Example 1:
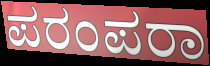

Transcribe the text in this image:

ಪರಂಪರಾ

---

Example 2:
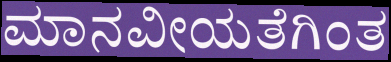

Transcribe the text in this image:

ಮಾನವೀಯತೆಗಿಂತ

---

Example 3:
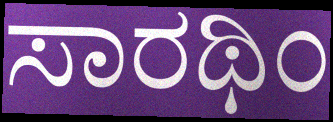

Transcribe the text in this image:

ಸಾರಥಿಂ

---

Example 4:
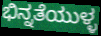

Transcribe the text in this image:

ಭಿನ್ನತೆಯುಳ್ಳ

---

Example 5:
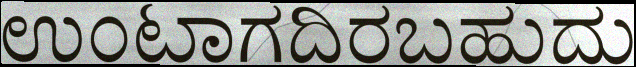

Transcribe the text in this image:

ಉಂಟಾಗದಿರಬಹುದು